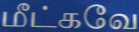
மீட்கவே